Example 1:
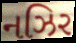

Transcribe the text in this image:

નઝિર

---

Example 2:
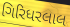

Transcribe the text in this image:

ગિરિધરલાલ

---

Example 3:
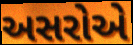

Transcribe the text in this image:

અસરોએ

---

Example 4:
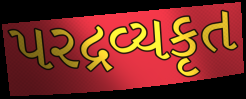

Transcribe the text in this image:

પરદ્રવ્યકૃત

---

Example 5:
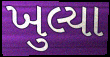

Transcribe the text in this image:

ખુલ્યા